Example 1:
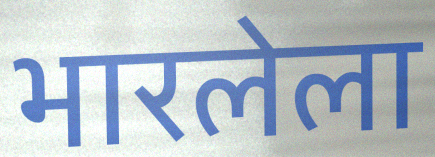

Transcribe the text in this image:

भारलेला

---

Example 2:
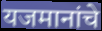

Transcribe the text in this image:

यजमानांचे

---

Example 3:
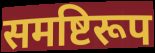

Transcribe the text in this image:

समष्टिरूप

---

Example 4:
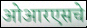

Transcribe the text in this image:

ओआरएसचे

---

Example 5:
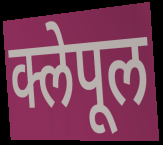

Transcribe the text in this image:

क्लेपूल